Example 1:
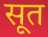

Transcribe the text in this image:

सूत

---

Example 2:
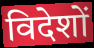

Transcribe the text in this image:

विदेशों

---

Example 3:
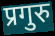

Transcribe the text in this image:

प्रगुरु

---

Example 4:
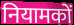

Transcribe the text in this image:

नियामकों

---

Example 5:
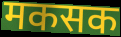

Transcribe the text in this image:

मकसक